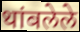
थांबलेले